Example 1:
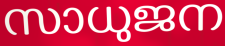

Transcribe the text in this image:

സാധുജന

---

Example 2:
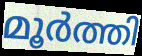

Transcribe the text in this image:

മൂർത്തി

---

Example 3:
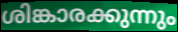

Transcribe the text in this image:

ശിങ്കാരക്കുന്നും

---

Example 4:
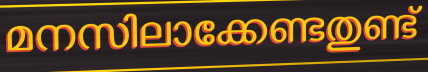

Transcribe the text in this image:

മനസിലാക്കേണ്ടതുണ്ട്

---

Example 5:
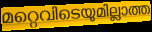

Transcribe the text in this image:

മറ്റെവിടെയുമില്ലാത്ത